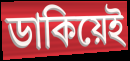
ডাকিয়েই